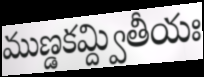
ముణ్డకమ్ద్వితీయః